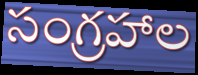
సంగ్రహాల